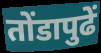
तोंडापुढें